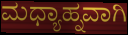
ಮಧ್ಯಾಹ್ನವಾಗಿ